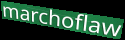
marchoflaw